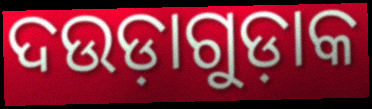
ଦଉଡ଼ାଗୁଡ଼ାକ